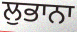
ਲੁਭਾਨਾ